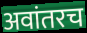
अवांतरच